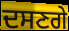
ਦਸਣਗੇ